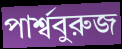
পার্শ্ববুরুজ